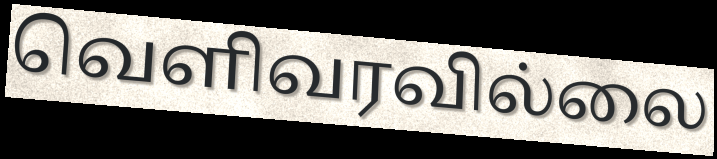
வெளிவரவில்லை